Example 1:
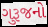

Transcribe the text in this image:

ગુરૂજનો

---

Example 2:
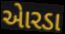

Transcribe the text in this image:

એારડા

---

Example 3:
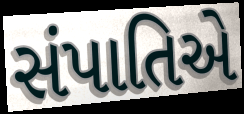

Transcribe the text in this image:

સંપાતિએ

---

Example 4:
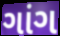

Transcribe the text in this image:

ગાંગ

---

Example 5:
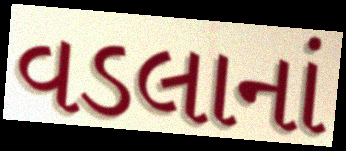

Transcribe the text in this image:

વડલાનાં